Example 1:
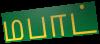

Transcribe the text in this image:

மபாட்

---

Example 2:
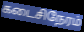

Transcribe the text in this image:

கடைசிநேரம்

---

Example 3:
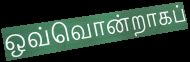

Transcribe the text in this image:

ஒவ்வொன்றாகப்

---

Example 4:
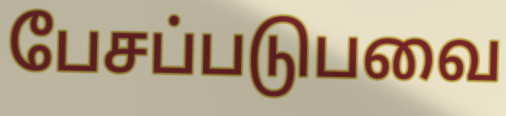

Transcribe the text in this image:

பேசப்படுபவை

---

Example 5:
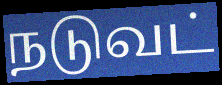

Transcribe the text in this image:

நடுவட்